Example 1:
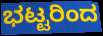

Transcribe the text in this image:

ಭಟ್ಟರಿಂದ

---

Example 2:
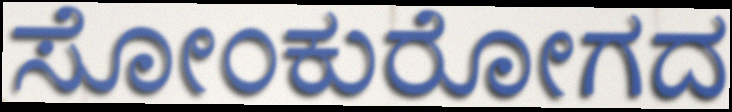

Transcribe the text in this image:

ಸೋಂಕುರೋಗದ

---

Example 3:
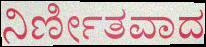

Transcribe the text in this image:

ನಿರ್ಣೀತವಾದ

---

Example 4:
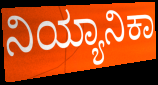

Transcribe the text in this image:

ನಿಯ್ಯಾನಿಕಾ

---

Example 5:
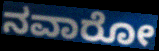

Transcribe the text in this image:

ನವಾರೋ